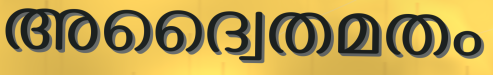
അദ്വൈതമതം